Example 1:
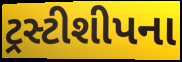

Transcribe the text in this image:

ટ્રસ્ટીશીપના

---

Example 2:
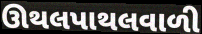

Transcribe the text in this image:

ઊથલપાથલવાળી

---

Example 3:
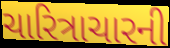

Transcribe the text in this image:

ચારિત્રાચારની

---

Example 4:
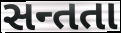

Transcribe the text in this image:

સન્તતા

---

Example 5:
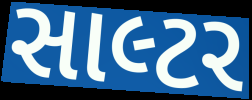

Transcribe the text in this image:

સાલ્ટર